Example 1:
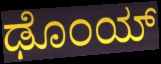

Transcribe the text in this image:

ಢೊಂಯ್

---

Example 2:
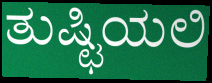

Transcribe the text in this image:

ತುಷ್ಟಿಯಲಿ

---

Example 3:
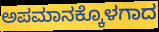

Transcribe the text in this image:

ಅಪಮಾನಕ್ಕೊಳಗಾದ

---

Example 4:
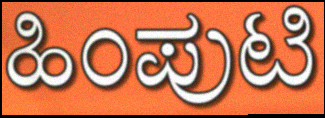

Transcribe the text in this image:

ಹಿಂಪುಟಿ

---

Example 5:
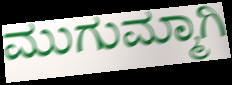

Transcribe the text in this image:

ಮುಗುಮ್ಮಾಗಿ